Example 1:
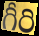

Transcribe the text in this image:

గీరి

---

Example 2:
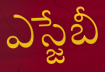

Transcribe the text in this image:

ఎస్జేబీ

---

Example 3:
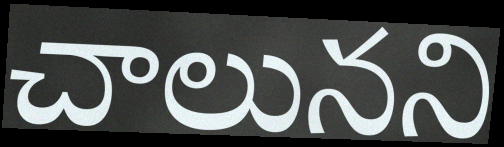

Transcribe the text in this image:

చాలునని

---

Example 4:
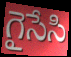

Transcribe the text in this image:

గైసేసి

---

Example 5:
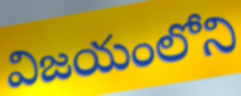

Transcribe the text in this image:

విజయంలోని